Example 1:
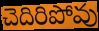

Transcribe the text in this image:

చెదిరిపోవు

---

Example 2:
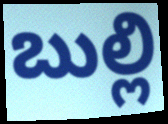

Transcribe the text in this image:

బుల్లి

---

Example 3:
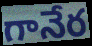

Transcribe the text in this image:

గానేర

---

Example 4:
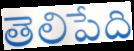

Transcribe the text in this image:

తెలిపేది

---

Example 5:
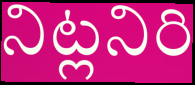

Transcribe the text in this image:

నిట్లనిరి